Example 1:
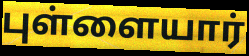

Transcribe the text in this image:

புள்ளையார்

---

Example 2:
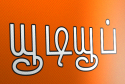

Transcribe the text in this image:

யூடியூப்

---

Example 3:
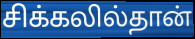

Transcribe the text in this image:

சிக்கலில்தான்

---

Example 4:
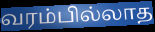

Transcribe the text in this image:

வரம்பில்லாத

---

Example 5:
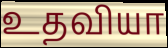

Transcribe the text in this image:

உதவியா